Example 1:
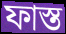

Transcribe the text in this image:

ফাস্ত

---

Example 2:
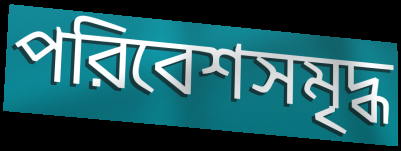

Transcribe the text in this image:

পরিবেশসমৃদ্ধ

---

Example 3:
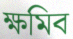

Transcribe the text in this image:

ক্ষমিব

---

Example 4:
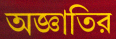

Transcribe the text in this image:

অজ্ঞাতির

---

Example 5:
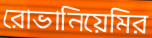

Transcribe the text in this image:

রোভানিয়েমির